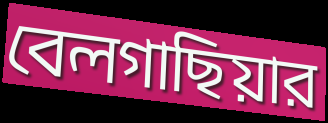
বেলগাছিয়ার